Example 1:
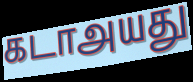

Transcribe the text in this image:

கடாஅயது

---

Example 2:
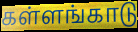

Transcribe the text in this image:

கள்ளங்காடு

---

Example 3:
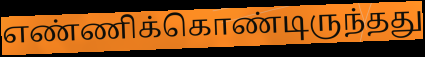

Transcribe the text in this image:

எண்ணிக்கொண்டிருந்தது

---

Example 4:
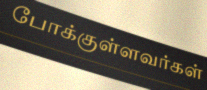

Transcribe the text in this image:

போக்குள்ளவர்கள்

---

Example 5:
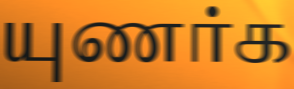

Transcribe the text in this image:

யுணர்க